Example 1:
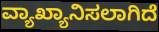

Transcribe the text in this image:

ವ್ಯಾಖ್ಯಾನಿಸಲಾಗಿದೆ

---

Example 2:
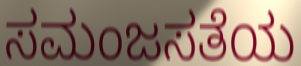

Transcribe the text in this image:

ಸಮಂಜಸತೆಯ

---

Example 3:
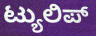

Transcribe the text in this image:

ಟ್ಯುಲಿಪ್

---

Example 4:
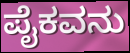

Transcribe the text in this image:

ಪೈಕವನು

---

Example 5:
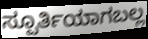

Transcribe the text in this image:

ಸ್ಪೂರ್ತಿಯಾಗಬಲ್ಲ